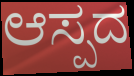
ಆಸ್ಪದ